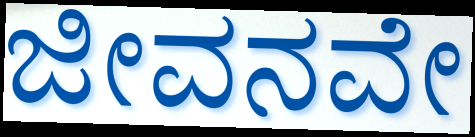
ಜೀವನವೇ